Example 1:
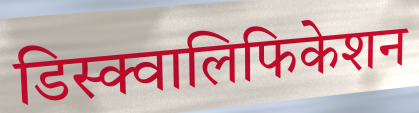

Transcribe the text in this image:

डिस्क्वालिफिकेशन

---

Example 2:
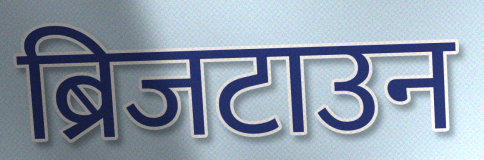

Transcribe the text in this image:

ब्रिजटाउन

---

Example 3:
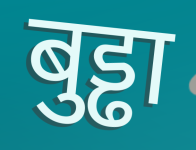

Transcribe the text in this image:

बुड्ढा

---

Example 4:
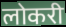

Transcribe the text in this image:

लोकरी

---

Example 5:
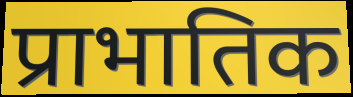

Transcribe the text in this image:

प्राभातिक